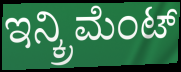
ಇನ್ಕ್ರಿಮೆಂಟ್